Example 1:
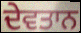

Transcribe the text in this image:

ਦੇਵਤਾਨ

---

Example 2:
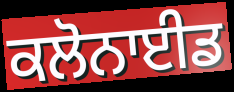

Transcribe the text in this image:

ਕਲੋਨਾਈਡ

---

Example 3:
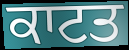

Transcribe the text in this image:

ਕਾਟਤ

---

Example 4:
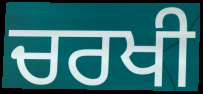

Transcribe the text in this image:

ਚਰਖੀ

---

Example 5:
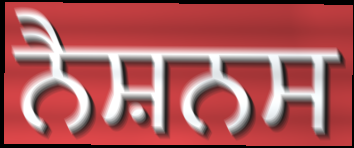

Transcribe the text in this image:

ਨੈਸ਼ਨਸ